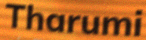
Tharumi